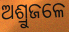
ଅଶ୍ରୁଜଳେ